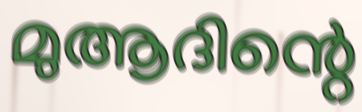
മുആദിന്റെ